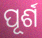
ପୂର୍ଶ